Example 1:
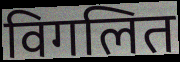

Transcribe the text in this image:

विगलित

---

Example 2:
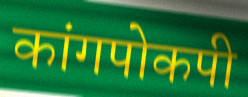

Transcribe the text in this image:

कांगपोकपी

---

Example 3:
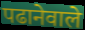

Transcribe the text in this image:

पढानेवाले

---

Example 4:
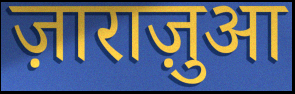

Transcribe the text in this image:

ज़ाराज़ुआ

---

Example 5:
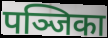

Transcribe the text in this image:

पञ्जिका